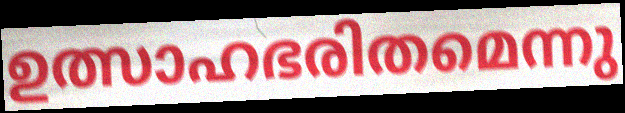
ഉത്സാഹഭരിതമെന്നു